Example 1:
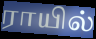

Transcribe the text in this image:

ராயில்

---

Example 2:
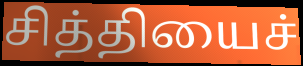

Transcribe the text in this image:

சித்தியைச்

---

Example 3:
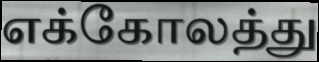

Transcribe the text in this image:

எக்கோலத்து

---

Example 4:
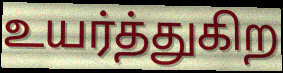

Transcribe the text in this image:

உயர்த்துகிற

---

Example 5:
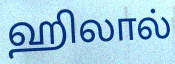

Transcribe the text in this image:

ஹிலால்